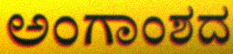
ಅಂಗಾಂಶದ